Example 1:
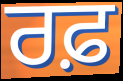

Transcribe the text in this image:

ਰਫ਼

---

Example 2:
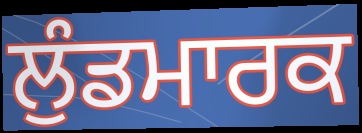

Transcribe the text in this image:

ਲੁੰਡਮਾਰਕ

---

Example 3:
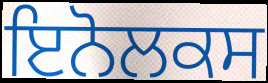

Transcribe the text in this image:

ਇਨੋਲਕਸ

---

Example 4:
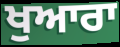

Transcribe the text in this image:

ਖੁਆਰਾ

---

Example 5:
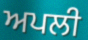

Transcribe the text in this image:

ਅਪਲੀ